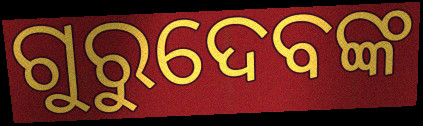
ଗୁରୁଦେବଙ୍କ